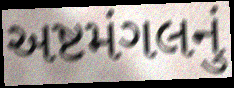
અષ્ટમંગલનું